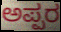
ಅಪ್ಪರ